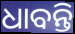
ଧାବନ୍ତି